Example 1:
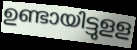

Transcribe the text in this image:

ഉണ്ടായിട്ടുളള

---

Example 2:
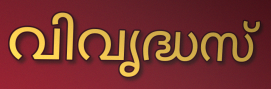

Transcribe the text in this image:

വിവൃദ്ധസ്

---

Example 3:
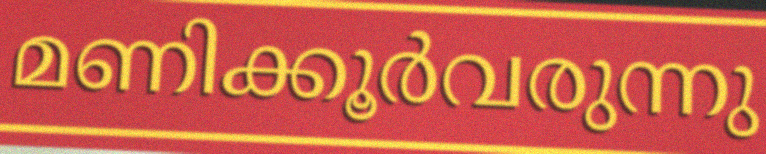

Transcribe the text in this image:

മണിക്കൂർവരുന്നു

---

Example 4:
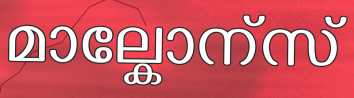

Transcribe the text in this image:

മാല്കോന്സ്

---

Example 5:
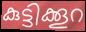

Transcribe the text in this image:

കുട്ടിക്കൂറ